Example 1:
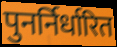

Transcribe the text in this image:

पुनर्निर्धारित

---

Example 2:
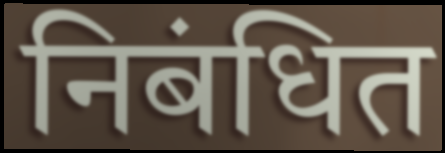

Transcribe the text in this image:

निबंधित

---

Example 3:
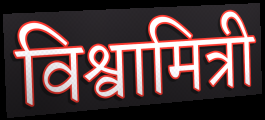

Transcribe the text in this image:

विश्वामित्री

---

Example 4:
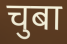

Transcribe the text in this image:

चुबा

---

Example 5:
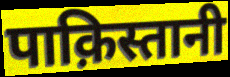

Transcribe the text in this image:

पाक़िस्तानी